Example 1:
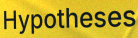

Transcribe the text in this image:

Hypotheses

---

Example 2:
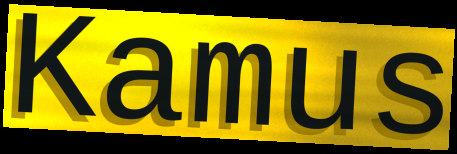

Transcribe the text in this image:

Kamus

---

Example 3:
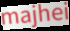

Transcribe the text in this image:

majhei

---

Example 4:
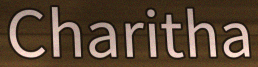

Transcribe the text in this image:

Charitha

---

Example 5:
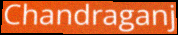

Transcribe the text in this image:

Chandraganj